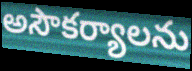
అసౌకర్యాలను